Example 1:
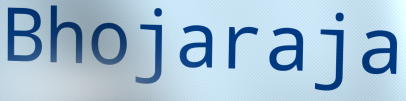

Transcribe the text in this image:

Bhojaraja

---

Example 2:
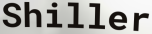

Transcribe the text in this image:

Shiller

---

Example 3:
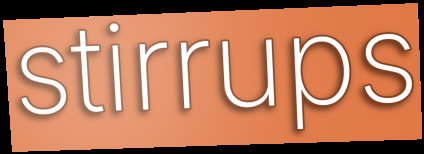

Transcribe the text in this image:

stirrups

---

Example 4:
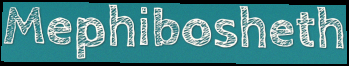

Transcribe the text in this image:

Mephibosheth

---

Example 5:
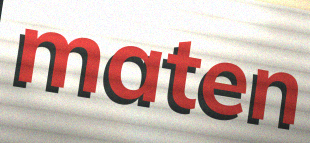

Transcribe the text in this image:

maten